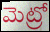
మెట్రో